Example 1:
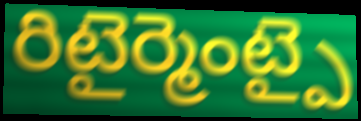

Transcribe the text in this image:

రిటైర్మెంట్పై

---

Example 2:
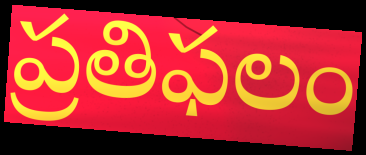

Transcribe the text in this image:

ప్రతిఫలం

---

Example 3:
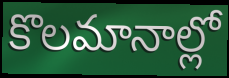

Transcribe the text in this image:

కొలమానాల్లో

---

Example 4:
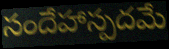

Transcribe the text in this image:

సందేహాస్పదమే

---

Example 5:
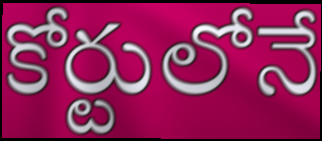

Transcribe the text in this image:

కోర్టులోనే